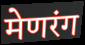
मेणरंग